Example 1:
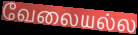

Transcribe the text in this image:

வேலையல்ல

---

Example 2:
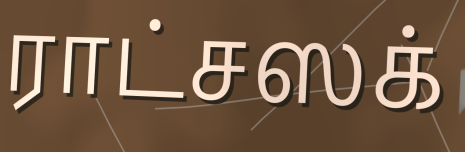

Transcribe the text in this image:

ராட்சஸக்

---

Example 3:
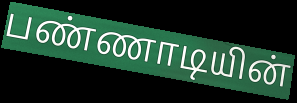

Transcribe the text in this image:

பண்ணாடியின்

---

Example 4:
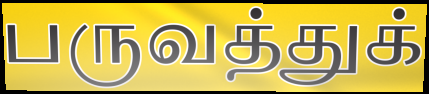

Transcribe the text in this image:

பருவத்துக்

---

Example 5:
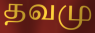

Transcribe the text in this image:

தவமு